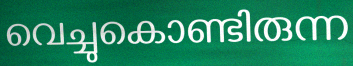
വെച്ചുകൊണ്ടിരുന്ന